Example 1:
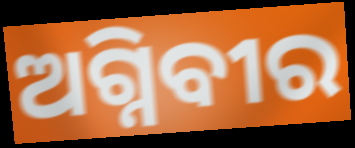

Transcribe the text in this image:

ଅଗ୍ନିବୀର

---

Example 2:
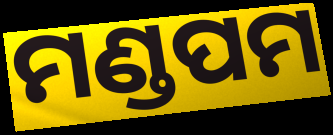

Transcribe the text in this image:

ମଣ୍ଡପମ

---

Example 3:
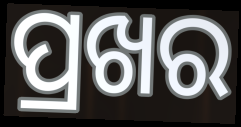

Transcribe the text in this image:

ପ୍ରଖର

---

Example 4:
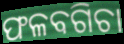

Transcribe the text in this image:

ଫଳବଗିଚା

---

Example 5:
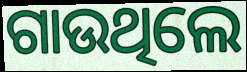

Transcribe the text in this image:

ଗାଉଥିଲେ